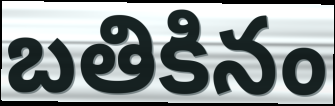
బతికినం